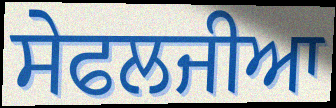
ਸੇਫਲਜੀਆ